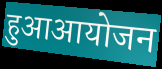
हुआआयोजन